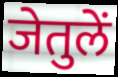
जेतुलें